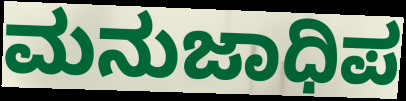
ಮನುಜಾಧಿಪ